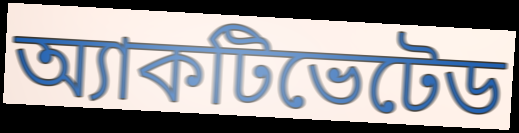
অ্যাকটিভেটেড